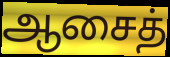
ஆசைத்